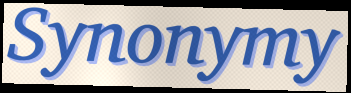
Synonymy